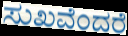
ಸುಖವೆಂದರೆ